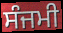
ਸੰਜਮੀ